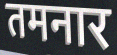
तमनार